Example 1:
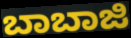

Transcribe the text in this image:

ಬಾಬಾಜಿ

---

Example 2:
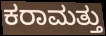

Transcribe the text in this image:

ಕರಾಮತ್ತು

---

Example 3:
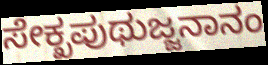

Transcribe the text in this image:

ಸೇಕ್ಖಪುಥುಜ್ಜನಾನಂ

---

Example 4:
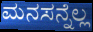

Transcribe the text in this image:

ಮನಸನ್ನೆಲ್ಲ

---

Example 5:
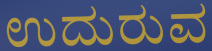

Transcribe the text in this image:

ಉದುರುವ